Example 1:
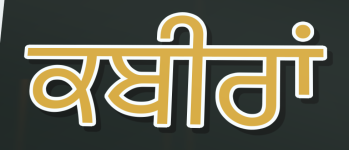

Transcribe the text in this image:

ਕਬੀਰਾਂ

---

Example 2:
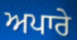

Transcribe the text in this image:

ਅਪਾਰੇ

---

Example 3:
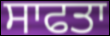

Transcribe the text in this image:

ਸਾਫਤਾ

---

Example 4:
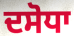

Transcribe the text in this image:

ਦਸੋਧਾ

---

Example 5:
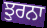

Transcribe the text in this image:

ਝੁਰਨਾ